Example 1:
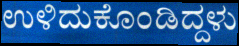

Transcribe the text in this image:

ಉಳಿದುಕೊಂಡಿದ್ದಳು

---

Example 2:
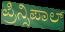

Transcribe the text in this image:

ಪ್ರಿನ್ಸಿಪಾಲ್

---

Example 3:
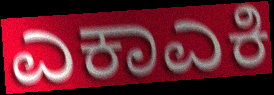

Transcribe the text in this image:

ಎಕಾಎಕಿ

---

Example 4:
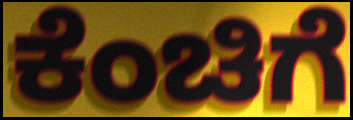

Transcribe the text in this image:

ಕೆಂಚಿಗೆ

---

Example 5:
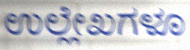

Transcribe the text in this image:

ಉಲ್ಲೇಖಗಳೂ